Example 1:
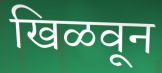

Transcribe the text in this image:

खिळवून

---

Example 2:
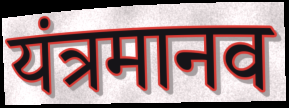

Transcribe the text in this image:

यंत्रमानव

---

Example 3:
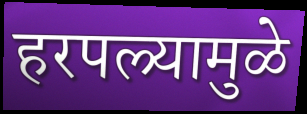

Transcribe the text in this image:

हरपल्यामुळे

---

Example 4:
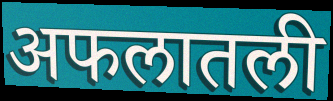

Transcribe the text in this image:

अफलातली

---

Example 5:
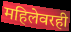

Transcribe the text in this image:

महिलेवरही